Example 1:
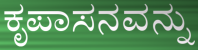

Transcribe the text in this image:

ಕೃಪಾಸನವನ್ನು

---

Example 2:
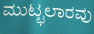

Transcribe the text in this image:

ಮುಟ್ಟಲಾರವು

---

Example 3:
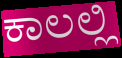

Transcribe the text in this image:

ಕಾಲಲ್ಲಿ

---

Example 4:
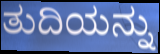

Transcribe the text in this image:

ತುದಿಯನ್ನು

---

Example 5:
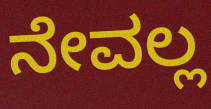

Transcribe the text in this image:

ನೇವಲ್ಲ